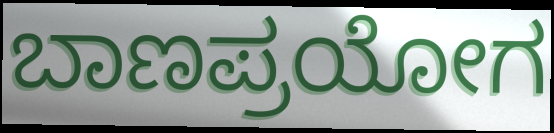
ಬಾಣಪ್ರಯೋಗ